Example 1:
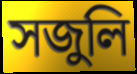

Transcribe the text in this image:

সজুলি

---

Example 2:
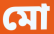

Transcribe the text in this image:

মো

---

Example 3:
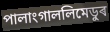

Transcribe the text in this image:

পালাংগাললিমেডুৰ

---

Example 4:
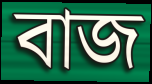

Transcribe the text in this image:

বাজ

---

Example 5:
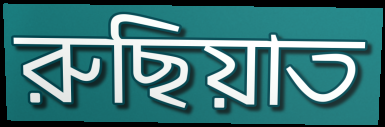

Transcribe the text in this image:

ৰুছিয়াত